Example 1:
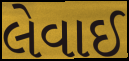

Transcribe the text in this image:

લેવાઈ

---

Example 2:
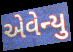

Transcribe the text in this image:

એવેન્યુ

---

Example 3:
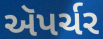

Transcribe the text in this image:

ઍપર્ચર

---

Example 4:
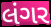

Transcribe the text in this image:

લંગર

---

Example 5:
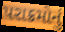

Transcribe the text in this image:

પરાક્રમોનું